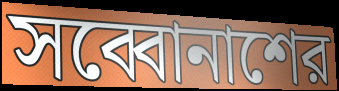
সব্বোনাশের